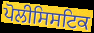
ਪੋਲੀਸਿਸਟਿਕ